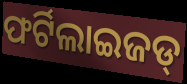
ଫର୍ଟିଲାଇଜଡ୍